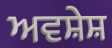
ਅਵਸ਼ੇਸ਼